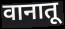
वानातू